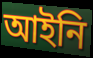
আইনি